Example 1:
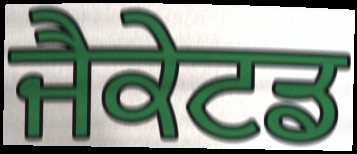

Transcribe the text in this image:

ਜੈਕੇਟਡ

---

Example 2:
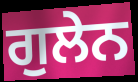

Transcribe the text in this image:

ਗੁਲੇਨ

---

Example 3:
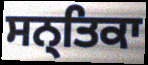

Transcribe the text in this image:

ਸਨ੍ਤਿਕਾ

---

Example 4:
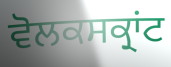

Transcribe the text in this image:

ਵੋਲਕਸਕ੍ਰਾਂਟ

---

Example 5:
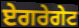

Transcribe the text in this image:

ਏਗਰੇਗੇਟ